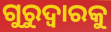
ଗୁରୁଦ୍ୱାରକୁ